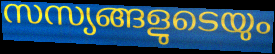
സസ്യങ്ങളുടെയും